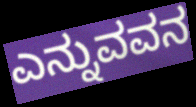
ಎನ್ನುವವನ